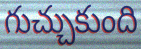
గుచ్చుకుంది